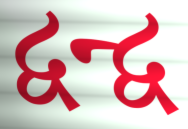
દ્વન્દ્વ